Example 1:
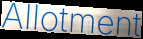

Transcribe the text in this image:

Allotment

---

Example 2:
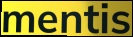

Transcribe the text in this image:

mentis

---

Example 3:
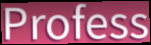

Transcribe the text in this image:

Profess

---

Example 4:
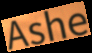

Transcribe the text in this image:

Ashe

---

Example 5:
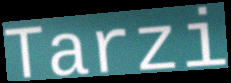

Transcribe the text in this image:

Tarzi